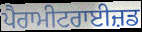
ਪੈਰਾਮੀਟਰਾਈਜ਼ਡ